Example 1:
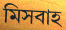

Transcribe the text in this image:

মিসবাহ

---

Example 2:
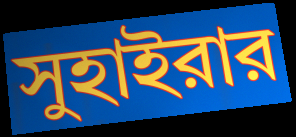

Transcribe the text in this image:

সুহাইরার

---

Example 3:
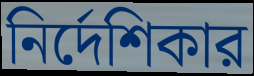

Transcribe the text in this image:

নির্দেশিকার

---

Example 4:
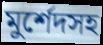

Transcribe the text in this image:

মুর্শেদসহ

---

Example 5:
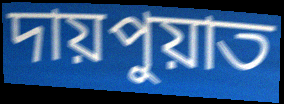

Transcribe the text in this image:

দায়পুয়াত